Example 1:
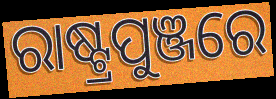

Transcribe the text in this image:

ରାଷ୍ଟ୍ରପୁଞ୍ଜରେ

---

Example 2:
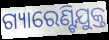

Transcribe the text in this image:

ଗ୍ୟାରେଣ୍ଟିଯୁକ୍ତ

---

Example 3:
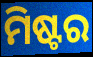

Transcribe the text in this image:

ମିଷ୍ଟର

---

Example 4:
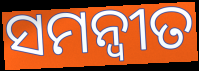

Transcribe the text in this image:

ସମନ୍ଵୀତ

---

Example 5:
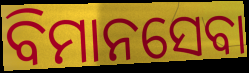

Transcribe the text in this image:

ବିମାନସେବା